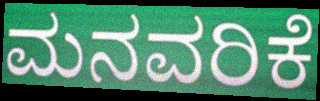
ಮನವರಿಕೆ